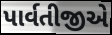
પાર્વતીજીએ